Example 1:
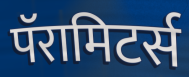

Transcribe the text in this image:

पॅरामिटर्स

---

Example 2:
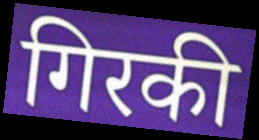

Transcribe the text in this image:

गिरकी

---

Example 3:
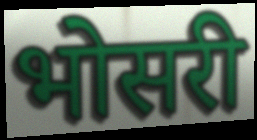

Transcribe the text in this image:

भोसरी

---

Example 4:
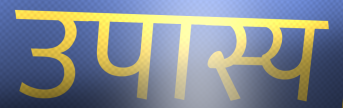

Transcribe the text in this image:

उपास्य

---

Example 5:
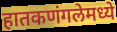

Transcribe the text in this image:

हातकणंगलेमध्ये